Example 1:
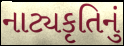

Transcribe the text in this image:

નાટ્યકૃતિનું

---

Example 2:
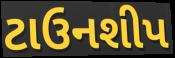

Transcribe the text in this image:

ટાઉનશીપ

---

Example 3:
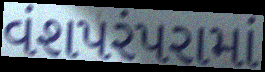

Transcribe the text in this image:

વંશપરંપરામાં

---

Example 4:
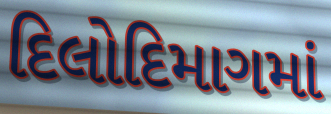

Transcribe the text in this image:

દિલોદિમાગમાં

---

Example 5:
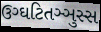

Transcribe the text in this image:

ઉગ્ઘટિતઞ્ઞુસ્સ